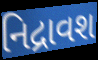
નિદ્રાવશ